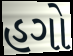
હગો